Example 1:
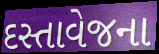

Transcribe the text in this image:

દસ્તાવેજના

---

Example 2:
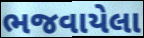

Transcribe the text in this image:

ભજવાયેલા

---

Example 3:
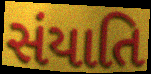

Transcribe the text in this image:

સંયાતિ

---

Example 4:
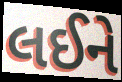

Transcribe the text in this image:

લઈને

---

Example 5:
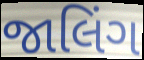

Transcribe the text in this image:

જાલિંગ